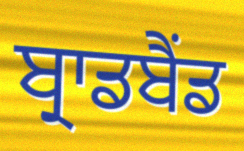
ਬ੍ਰਾਡਬੈਂਡ